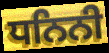
ਧਨਿਨੀ